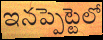
ఇనప్పెట్టెలో